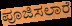
ಪೂಜಿಸಲಾರೆ